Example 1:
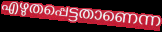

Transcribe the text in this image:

എഴുതപ്പെട്ടതാണെന്ന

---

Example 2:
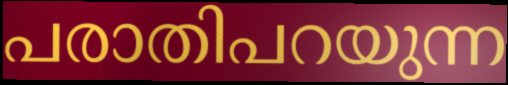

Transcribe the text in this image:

പരാതിപറയുന്ന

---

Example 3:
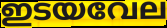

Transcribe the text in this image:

ഇടയവേല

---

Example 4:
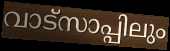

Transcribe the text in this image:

വാട്സാപ്പിലും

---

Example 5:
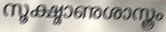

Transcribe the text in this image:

സൂക്ഷ്മാണുശാസ്ത്രം